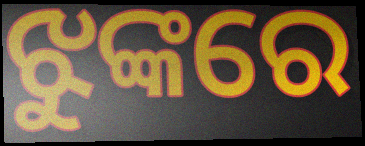
ଝୁଙ୍କରେ